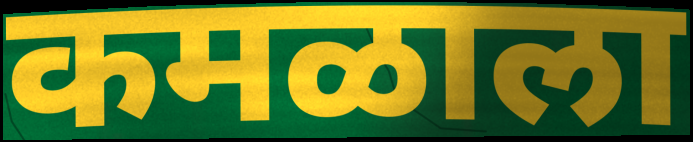
कमळाला